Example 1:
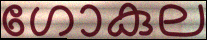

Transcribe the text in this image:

ഗോകുല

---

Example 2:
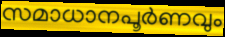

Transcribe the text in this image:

സമാധാനപൂർണവും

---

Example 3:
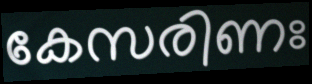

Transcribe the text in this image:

കേസരിണഃ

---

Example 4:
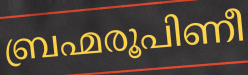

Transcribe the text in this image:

ബ്രഹ്മരൂപിണീ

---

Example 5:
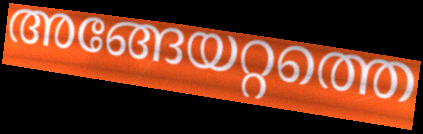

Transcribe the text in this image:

അങ്ങേയറ്റത്തെ